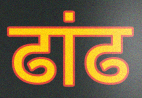
ढांढ